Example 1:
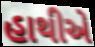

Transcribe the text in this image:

હાથીએ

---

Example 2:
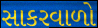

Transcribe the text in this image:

સાકરવાળો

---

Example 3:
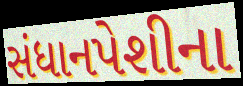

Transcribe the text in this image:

સંધાનપેશીના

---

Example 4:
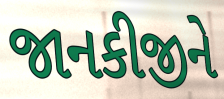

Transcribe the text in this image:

જાનકીજીને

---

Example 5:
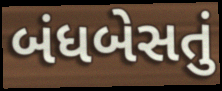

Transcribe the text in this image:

બંધબેસતું